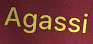
Agassi